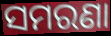
ସମରଣା